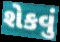
શેકવું